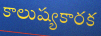
కాలుష్యకారక